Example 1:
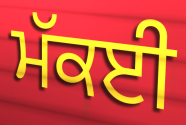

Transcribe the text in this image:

ਮੱਕਈ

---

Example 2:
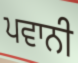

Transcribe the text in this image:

ਪਵਾਨੀ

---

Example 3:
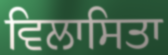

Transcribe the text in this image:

ਵਿਲਾਸਿਤਾ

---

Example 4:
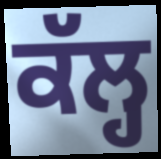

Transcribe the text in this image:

ਕੱਲ੍ਹ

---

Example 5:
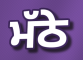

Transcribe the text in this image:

ਮੱਠੇ